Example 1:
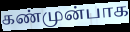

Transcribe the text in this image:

கண்முன்பாக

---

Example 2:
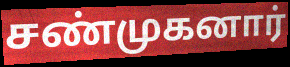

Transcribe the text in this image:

சண்முகனார்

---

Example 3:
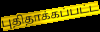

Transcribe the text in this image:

புதிதாக்கப்பட்ட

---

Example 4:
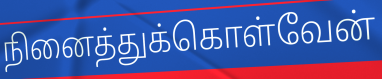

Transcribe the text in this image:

நினைத்துக்கொள்வேன்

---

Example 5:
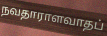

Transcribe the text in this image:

நவதாராளவாதப்